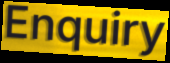
Enquiry